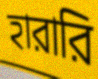
হারারি